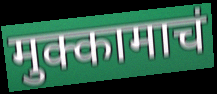
मुक्कामाचं